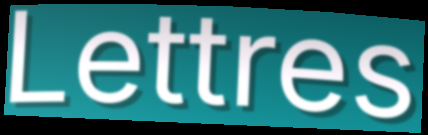
Lettres